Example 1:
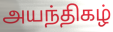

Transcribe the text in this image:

அயந்திகழ்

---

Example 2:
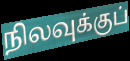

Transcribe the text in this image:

நிலவுக்குப்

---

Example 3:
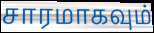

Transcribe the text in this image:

சாரமாகவும்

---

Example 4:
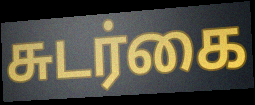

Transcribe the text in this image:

சுடர்கை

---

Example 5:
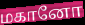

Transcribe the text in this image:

மகானோ